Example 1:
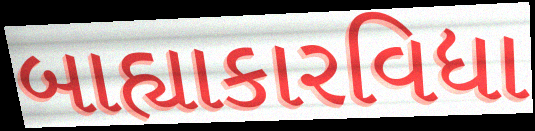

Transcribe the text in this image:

બાહ્યાકારવિદ્યા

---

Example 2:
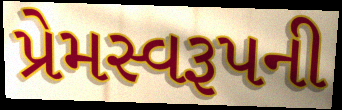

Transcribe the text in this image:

પ્રેમસ્વરૂપની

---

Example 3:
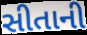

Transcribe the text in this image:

સીતાની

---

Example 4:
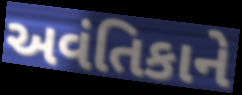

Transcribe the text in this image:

અવંતિકાને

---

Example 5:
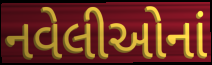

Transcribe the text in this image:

નવેલીઓનાં